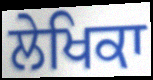
ਲੇਖਿਕਾ